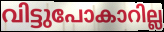
വിട്ടുപോകാറില്ല